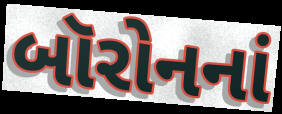
બૉરોનનાં